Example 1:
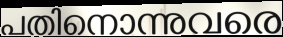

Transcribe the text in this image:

പതിനൊന്നുവരെ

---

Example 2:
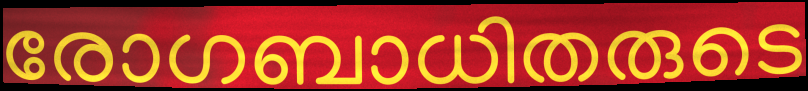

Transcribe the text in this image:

രോഗബാധിതരുടെ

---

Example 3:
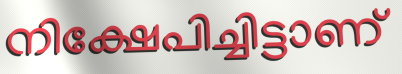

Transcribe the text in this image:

നിക്ഷേപിച്ചിട്ടാണ്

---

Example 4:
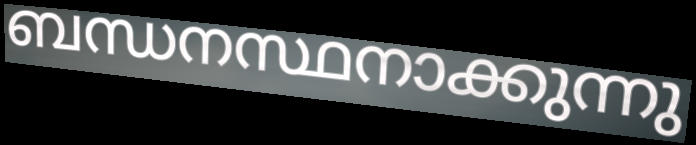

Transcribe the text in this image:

ബന്ധനസ്ഥനാക്കുന്നു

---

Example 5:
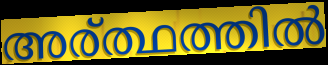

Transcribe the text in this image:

അര്ത്ഥത്തിൽ